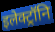
इलेक्ट्रॉनि